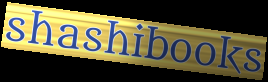
shashibooks